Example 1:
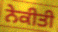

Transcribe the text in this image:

ਨੇਕੀਤੀ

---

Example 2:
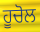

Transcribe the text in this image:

ਹੂਚੋਲ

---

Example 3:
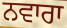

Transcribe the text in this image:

ਨਵਾਰਾ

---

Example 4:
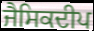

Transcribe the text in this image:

ਜੈਸਿਕਦੀਪ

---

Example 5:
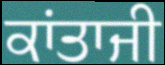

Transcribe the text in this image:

ਕਾਂਤਾਜੀ